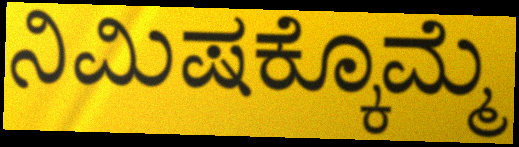
ನಿಮಿಷಕ್ಕೊಮ್ಮೆ